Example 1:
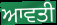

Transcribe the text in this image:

ਆਵਤੀ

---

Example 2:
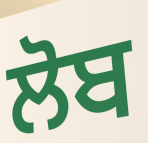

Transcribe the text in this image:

ਲੋਬ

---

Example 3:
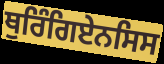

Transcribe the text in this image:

ਥੁਰਿੰਗਿਏਨਸਿਸ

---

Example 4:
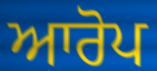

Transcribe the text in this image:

ਆਰੋਪ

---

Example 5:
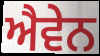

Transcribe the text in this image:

ਐਵੇਨ